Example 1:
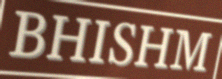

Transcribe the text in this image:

BHISHM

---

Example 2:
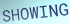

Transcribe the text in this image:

SHOWING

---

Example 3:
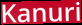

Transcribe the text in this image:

Kanuri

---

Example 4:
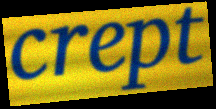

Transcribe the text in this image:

crept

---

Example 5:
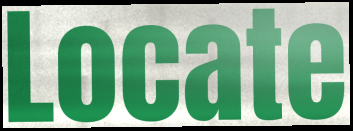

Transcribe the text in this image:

Locate